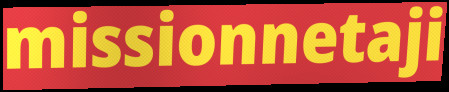
missionnetaji